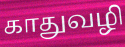
காதுவழி